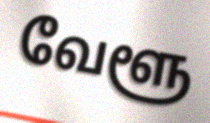
வேளூ